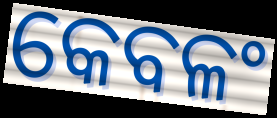
କେବଳଂ